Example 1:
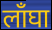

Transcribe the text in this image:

लाँघा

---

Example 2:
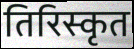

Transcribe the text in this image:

तिरिस्कृत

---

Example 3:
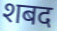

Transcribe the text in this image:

शबद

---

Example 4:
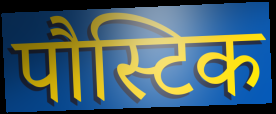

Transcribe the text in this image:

पौस्टिक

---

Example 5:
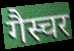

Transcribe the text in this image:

गैस्चर